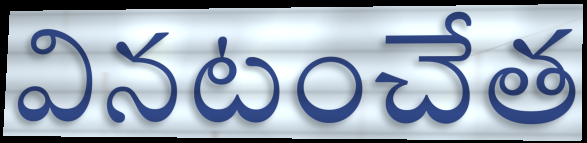
వినటంచేత